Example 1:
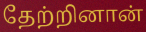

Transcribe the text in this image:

தேற்றினான்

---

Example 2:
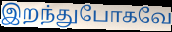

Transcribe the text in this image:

இறந்துபோகவே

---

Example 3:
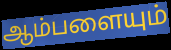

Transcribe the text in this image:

ஆம்பளையும்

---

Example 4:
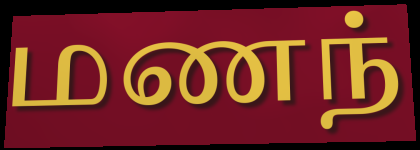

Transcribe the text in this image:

மணந்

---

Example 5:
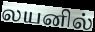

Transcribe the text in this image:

லயனில்